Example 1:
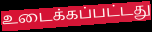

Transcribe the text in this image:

உடைக்கப்பட்டது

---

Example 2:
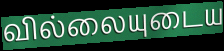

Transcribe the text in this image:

வில்லையுடைய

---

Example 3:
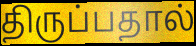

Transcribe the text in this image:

திருப்பதால்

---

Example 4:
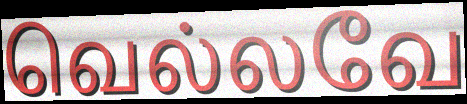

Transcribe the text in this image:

வெல்லவே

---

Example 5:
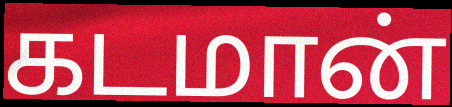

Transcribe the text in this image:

கடமான்